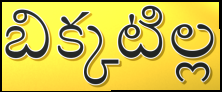
బిక్కటిల్ల